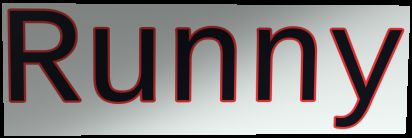
Runny